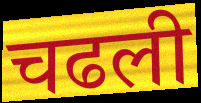
चढली